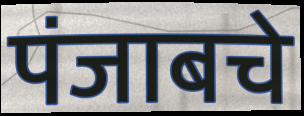
पंजाबचे